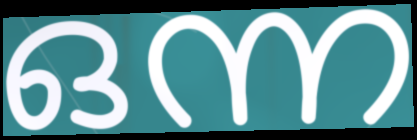
ഒന്ന